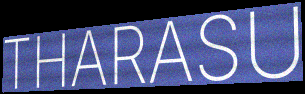
THARASU